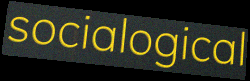
socialogical